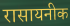
रासायनीक